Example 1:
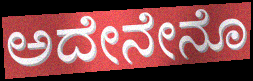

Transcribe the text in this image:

ಅದೇನೇನೊ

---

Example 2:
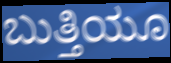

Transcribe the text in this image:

ಬುತ್ತಿಯೂ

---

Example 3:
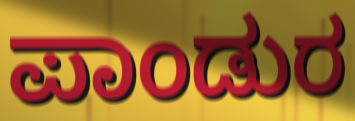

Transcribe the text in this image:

ಪಾಂಡುರ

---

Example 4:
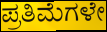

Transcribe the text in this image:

ಪ್ರತಿಮೆಗಳೇ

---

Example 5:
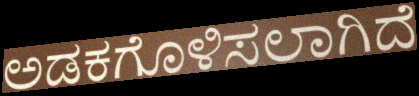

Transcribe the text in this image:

ಅಡಕಗೊಳಿಸಲಾಗಿದೆ